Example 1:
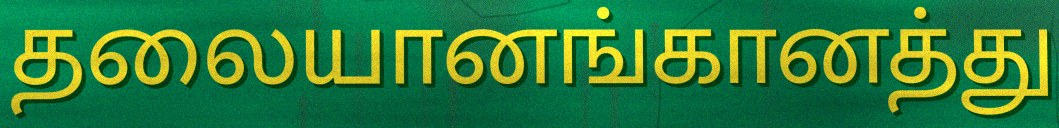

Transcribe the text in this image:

தலையானங்கானத்து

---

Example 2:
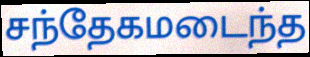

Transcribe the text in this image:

சந்தேகமடைந்த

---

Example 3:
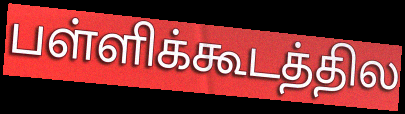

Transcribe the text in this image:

பள்ளிக்கூடத்தில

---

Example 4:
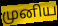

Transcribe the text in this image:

முனிய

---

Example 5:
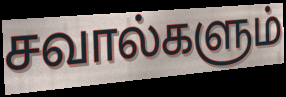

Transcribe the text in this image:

சவால்களும்